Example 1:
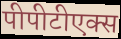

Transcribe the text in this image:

पीपीटीएक्स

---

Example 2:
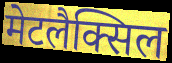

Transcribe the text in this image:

मेटलैक्सिल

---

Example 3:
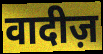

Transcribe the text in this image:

वादीज़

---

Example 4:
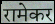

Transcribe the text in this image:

रामेकर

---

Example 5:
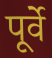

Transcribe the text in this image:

पूर्वे